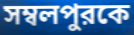
সম্বলপুরকে